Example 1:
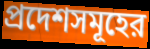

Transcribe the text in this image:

প্রদেশসমূহের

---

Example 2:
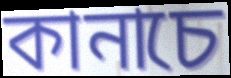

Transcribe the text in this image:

কানাচে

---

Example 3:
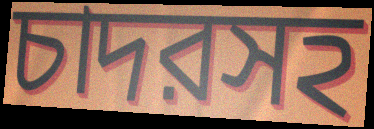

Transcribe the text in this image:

চাদরসহ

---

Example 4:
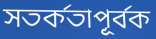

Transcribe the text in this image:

সতর্কতাপূর্বক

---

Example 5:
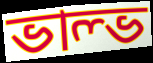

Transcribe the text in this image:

ভাল্ভ